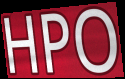
HPO